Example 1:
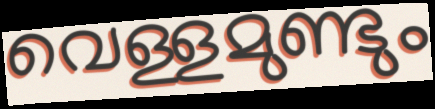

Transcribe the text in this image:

വെള്ളമുണ്ടും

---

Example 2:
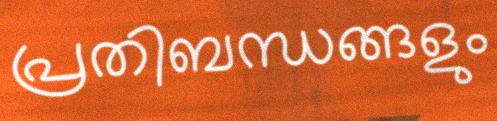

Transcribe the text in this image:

പ്രതിബന്ധങ്ങളും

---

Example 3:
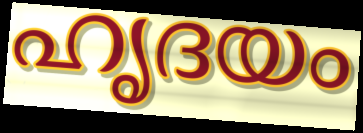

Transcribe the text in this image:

ഹൃദയം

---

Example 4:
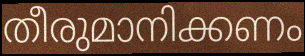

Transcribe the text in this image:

തീരുമാനിക്കണം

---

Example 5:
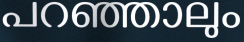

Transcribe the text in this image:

പറഞ്ഞാലും